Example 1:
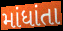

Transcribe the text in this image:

માંધાંતા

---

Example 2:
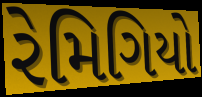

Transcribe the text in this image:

રેમિગિયો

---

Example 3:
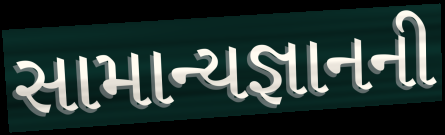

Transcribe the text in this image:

સામાન્યજ્ઞાનની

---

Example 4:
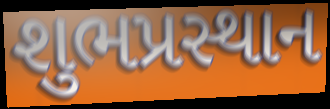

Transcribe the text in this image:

શુભપ્રસ્થાન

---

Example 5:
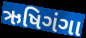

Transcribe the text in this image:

ઋષિગંગા